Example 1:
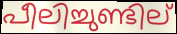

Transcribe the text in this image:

പീലിച്ചുണ്ടില്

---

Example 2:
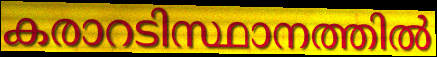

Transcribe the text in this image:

കരാറടിസ്ഥാനത്തിൽ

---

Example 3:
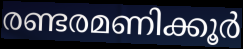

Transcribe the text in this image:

രണ്ടരമണിക്കൂർ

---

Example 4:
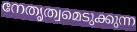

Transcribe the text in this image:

നേതൃത്വമെടുക്കുന്ന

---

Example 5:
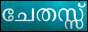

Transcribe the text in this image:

ചേതസ്സ്